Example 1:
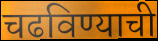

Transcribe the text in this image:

चढविण्याची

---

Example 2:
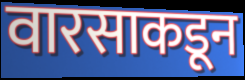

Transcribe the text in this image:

वारसाकडून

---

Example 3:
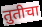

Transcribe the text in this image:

तुतीचा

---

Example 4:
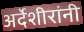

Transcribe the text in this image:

अर्देशीरांनी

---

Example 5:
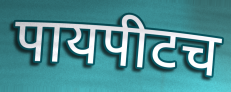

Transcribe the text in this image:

पायपीटच